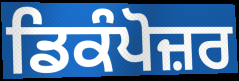
ਡਿਕੰਪੋਜ਼ਰ